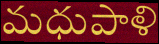
మధుపాళి